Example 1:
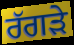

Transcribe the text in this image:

ਰੱਗੜੇ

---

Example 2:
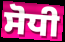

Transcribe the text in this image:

ਸੋਧੀ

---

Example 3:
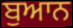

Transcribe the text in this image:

ਬੁਆਨ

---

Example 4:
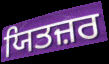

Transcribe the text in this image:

ਯਿਤਜ਼ਰ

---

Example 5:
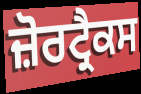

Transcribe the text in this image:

ਜ਼ੋਰਟ੍ਰੈਕਸ